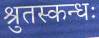
श्रुतस्कन्धः